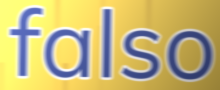
falso